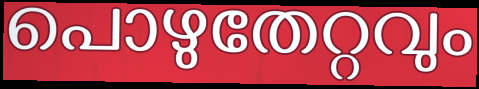
പൊഴുതേറ്റവും